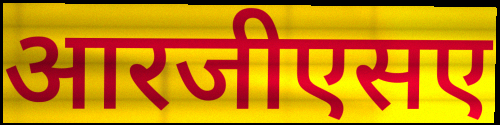
आरजीएसए